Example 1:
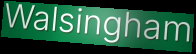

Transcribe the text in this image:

Walsingham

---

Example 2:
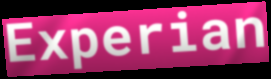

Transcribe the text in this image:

Experian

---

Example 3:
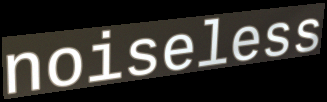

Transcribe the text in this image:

noiseless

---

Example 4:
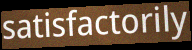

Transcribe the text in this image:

satisfactorily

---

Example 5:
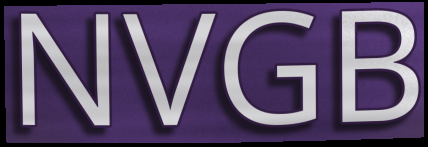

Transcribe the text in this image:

NVGB